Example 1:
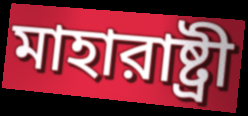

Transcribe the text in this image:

মাহারাষ্ট্রী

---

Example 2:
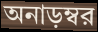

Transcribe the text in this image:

অনাড়ম্বর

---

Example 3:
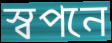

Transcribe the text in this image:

স্বপনে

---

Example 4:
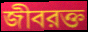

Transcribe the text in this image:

জীবরক্ত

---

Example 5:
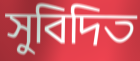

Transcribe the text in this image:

সুবিদিত